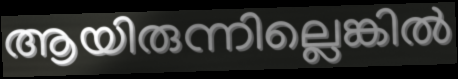
ആയിരുന്നില്ലെങ്കിൽ